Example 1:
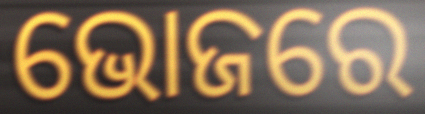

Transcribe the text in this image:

ଭୋଜରେ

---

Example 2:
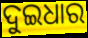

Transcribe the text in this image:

ଦୁଇଧାର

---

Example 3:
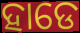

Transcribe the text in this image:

ହାଡେ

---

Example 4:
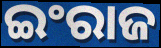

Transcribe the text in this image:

ଇଂରାଜ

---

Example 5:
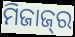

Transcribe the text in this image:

ମିଜାଜ୍‌ର